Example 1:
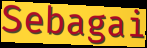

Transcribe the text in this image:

Sebagai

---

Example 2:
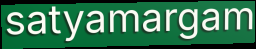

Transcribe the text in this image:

satyamargam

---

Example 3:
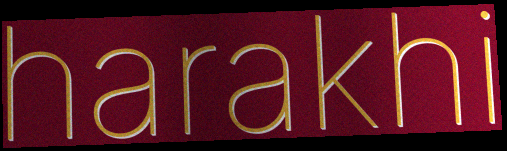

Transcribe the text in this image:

harakhi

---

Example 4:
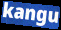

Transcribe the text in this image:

kangu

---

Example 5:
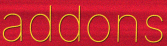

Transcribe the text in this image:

addons